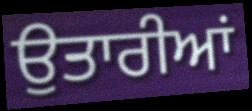
ਉਤਾਰੀਆਂ